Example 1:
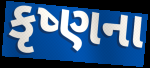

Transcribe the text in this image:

કૃષ્ણના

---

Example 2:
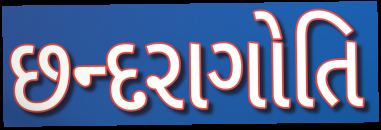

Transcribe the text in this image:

છન્દરાગોતિ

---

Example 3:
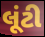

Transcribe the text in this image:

લૂંટી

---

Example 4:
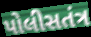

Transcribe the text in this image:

પોલીસતંત્ર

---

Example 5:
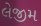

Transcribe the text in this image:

લેજીમ